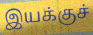
இயக்குச்